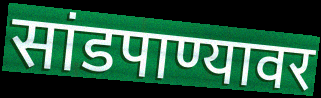
सांडपाण्यावर